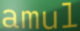
amul